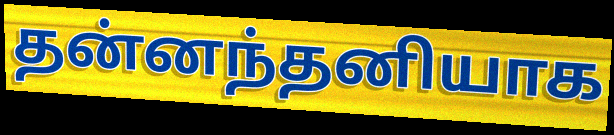
தன்னந்தனியாக